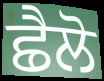
ਛੈਲੋ